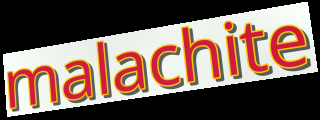
malachite